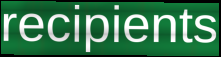
recipients